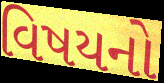
વિષયનો